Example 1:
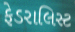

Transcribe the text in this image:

ફેડરાલિસ્ટ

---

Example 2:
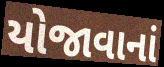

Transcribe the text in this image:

યોજાવાનાં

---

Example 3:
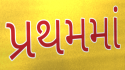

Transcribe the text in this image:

પ્રથમમાં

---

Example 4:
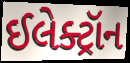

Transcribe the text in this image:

ઈલેક્ટ્રૉન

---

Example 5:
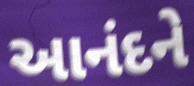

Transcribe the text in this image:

આનંદને